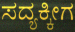
ಸದ್ಯಕ್ಕೀಗ